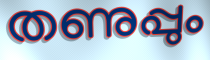
തണുപ്പും